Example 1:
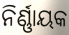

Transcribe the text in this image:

ନିର୍ଣ୍ଣାୟକ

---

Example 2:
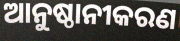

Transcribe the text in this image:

ଆନୁଷ୍ଠାନୀକରଣ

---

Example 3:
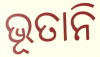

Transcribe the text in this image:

ଭୂତାନି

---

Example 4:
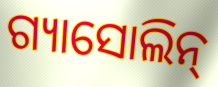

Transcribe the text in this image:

ଗ୍ୟାସୋଲିନ୍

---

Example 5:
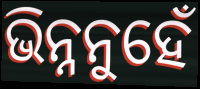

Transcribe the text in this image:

ଭିନ୍ନନୁହେଁ